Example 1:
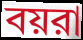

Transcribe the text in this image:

বয়রা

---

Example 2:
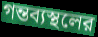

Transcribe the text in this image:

গন্তব্যস্থলের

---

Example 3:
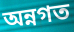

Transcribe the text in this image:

অন্নগত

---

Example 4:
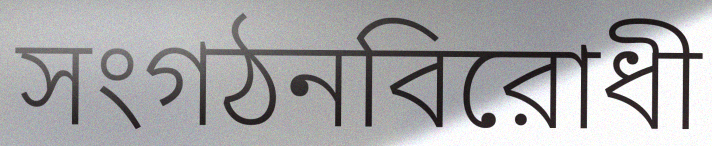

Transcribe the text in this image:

সংগঠনবিরোধী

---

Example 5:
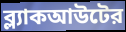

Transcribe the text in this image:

ব্ল্যাকআউটের